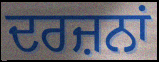
ਦਰਜ਼ਨਾਂ